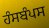
ਹੰਸਬੰਪਸ